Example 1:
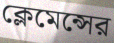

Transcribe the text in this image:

ক্লেমেন্সের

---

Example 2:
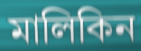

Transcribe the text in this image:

মালিকিন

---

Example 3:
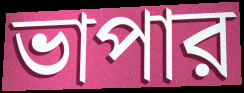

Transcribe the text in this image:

ভাপার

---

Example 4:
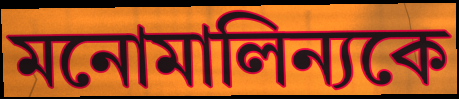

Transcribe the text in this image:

মনোমালিন্যকে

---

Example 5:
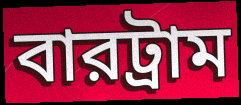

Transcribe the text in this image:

বারট্রাম